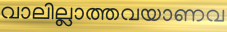
വാലില്ലാത്തവയാണവ